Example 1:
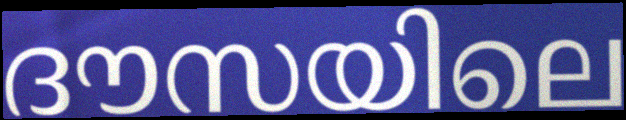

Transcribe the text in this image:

ദൗസയിലെ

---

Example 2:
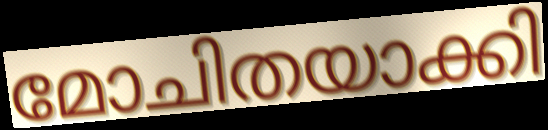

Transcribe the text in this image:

മോചിതയാക്കി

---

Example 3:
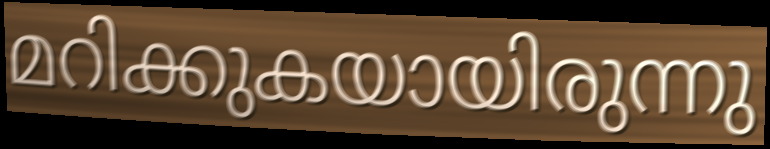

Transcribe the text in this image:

മറിക്കുകയായിരുന്നു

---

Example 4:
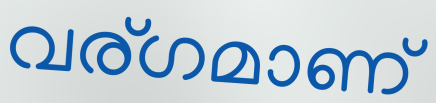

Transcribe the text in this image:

വര്ഗമാണ്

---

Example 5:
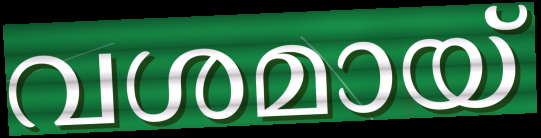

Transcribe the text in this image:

വശമായ്